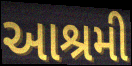
આશ્રમી